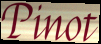
Pinot